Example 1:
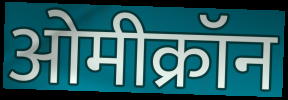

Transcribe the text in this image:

ओमीक्रॉन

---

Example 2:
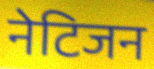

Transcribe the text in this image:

नेटिजन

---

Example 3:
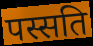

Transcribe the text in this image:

पस्सति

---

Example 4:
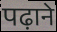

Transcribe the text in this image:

पढ़ाने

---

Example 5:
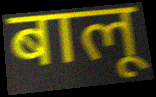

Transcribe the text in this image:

बालू